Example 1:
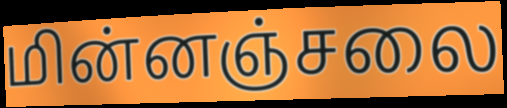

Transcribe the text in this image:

மின்னஞ்சலை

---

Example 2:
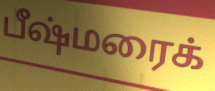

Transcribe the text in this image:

பீஷ்மரைக்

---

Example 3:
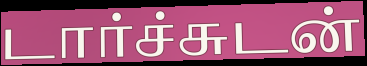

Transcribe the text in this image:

டார்ச்சுடன்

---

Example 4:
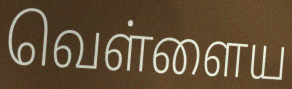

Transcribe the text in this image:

வெள்ளைய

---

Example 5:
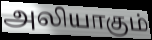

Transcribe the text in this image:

அலியாகும்